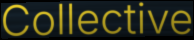
Collective